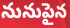
నునుపైన